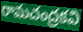
రామచంద్రకవి